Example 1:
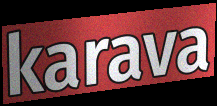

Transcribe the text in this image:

karava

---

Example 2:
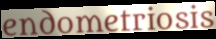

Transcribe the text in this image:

endometriosis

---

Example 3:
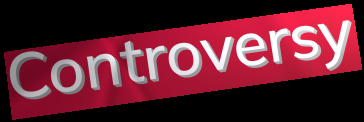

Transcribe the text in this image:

Controversy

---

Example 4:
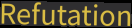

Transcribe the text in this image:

Refutation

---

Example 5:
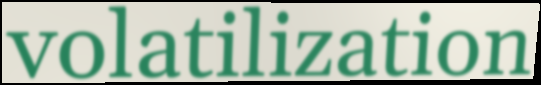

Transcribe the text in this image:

volatilization